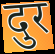
दुर